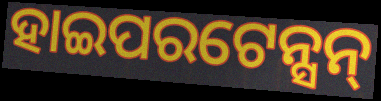
ହାଇପରଟେନ୍ସନ୍